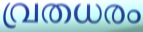
വ്രതധരം